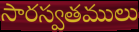
సారస్వతములు